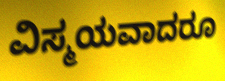
ವಿಸ್ಮಯವಾದರೂ